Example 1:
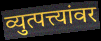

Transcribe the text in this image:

व्युत्पत्त्यांवर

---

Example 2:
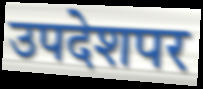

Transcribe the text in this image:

उपदेशपर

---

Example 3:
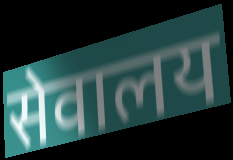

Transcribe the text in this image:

सेवालय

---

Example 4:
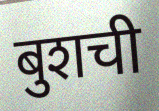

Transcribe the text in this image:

बुशची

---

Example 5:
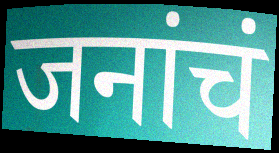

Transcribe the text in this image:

जनांचं